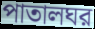
পাতালঘর